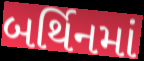
બર્થિનમાં